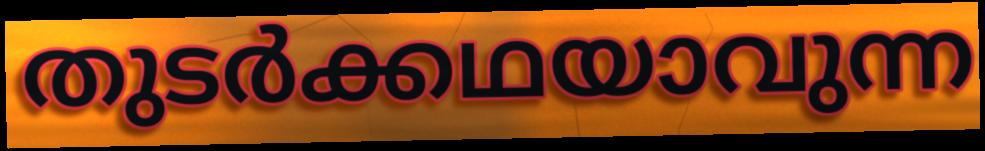
തുടർക്കഥയാവുന്ന